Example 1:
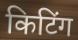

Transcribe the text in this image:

किटिंग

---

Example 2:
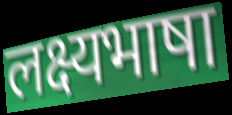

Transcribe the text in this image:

लक्ष्यभाषा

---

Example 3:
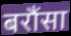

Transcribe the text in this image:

बरौंसा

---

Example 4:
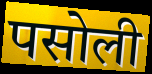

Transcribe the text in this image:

पसोली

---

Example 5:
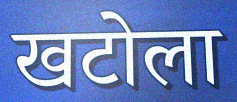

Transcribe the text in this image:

खटोला